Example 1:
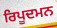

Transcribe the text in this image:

ਰਿਪੂਦਮਨ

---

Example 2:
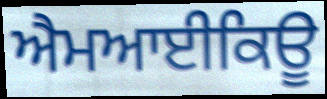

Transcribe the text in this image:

ਐਮਆਈਕਿਊ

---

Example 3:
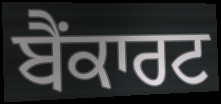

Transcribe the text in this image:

ਬੈਂਕਾਰਟ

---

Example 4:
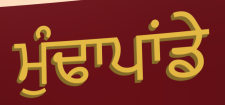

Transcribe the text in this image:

ਮੁੰਢਾਪਾਂਡੇ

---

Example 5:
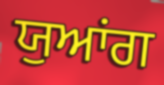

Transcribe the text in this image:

ਯੁਆਂਗ